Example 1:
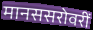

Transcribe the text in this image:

मानससरोवरीं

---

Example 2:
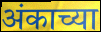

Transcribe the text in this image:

अंकाच्या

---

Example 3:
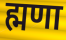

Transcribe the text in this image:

ह्मणा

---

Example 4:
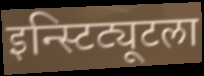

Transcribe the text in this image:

इन्स्टिट्यूटला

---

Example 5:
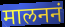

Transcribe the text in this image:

मालननं